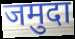
जमुदा